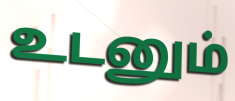
உடனும்